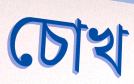
চোখ